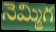
నెమ్మిగ